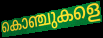
കൊഞ്ചുകളെ